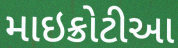
માઇક્રોટીઆ